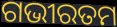
ଗଭୀରତମ